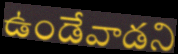
ఉండేవాడని